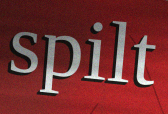
spilt